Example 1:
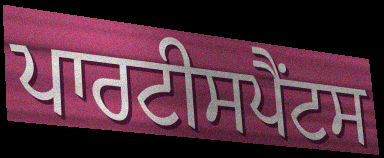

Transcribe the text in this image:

ਪਾਰਟੀਸਪੈਂਟਸ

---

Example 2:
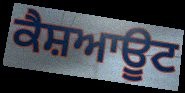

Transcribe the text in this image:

ਕੈਸ਼ਆਊਟ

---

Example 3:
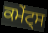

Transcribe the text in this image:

ਕਮੇਂਟ੍ਸ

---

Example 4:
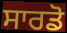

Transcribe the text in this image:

ਸਾਰਡੋ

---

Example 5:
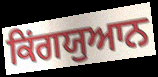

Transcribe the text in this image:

ਕਿਂਗਯੁਆਨ